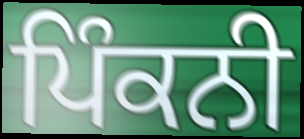
ਪਿੰਕਨੀ